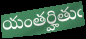
యంతర్హితుఁ